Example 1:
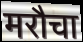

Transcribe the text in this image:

मरौचा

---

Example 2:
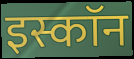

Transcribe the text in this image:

इस्‍कॉन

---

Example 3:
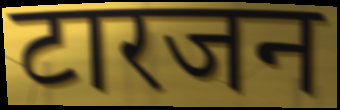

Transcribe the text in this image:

टारजन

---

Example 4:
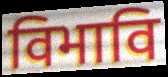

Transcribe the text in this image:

विभावि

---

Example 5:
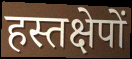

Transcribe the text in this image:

हस्तक्षेपों